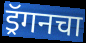
ड्रॅगनचा